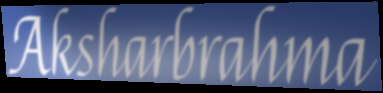
Aksharbrahma